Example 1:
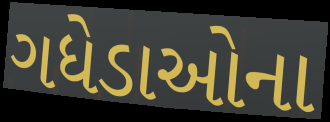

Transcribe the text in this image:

ગધેડાઓના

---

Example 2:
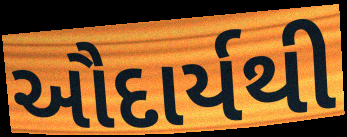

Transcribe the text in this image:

ઔદાર્યથી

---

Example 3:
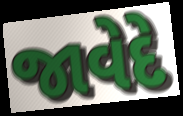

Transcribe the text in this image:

જાવેદે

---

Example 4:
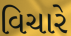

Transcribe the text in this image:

વિચારે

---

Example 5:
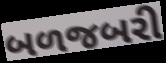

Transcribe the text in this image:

બળજબરી